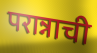
परान्नाची